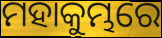
ମହାକୁମ୍ଭରେ